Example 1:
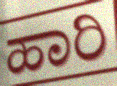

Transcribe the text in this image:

ಹಾರಿ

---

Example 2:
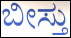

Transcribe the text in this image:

ಬೀಸ್ತು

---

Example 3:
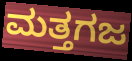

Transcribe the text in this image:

ಮತ್ತಗಜ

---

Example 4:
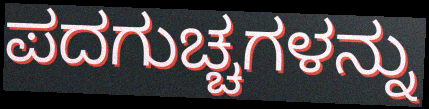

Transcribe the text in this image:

ಪದಗುಚ್ಚಗಳನ್ನು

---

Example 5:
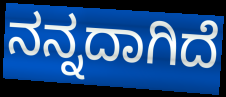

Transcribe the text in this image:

ನನ್ನದಾಗಿದೆ